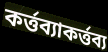
কর্ত্তব্যাকর্ত্তব্য